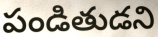
పండితుడని